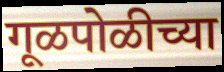
गूळपोळीच्या